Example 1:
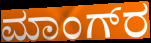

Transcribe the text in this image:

ಮಾಂಗ್‌ರ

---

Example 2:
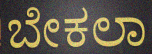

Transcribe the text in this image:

ಬೇಕಲಾ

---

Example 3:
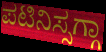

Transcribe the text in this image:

ಪಟಿನಿಸ್ಸಗ್ಗಾ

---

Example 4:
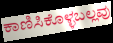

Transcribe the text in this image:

ಕಾಣಿಸಿಕೊಳ್ಳಬಲ್ಲವು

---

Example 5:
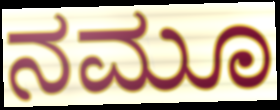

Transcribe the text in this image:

ನಮೂ